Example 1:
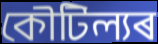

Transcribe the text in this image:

কৌটিল্যৰ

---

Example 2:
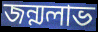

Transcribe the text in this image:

জন্মলাভ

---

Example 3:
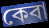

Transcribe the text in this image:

কেবা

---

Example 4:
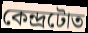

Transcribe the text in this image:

কেন্দ্ৰটোত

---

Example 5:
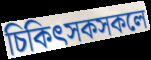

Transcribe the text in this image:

চিকিৎসকসকলে